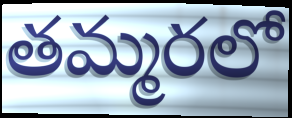
తమ్మరలో